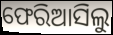
ଫେରିଆସିଲୁ